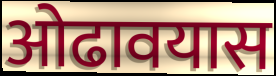
ओढावयास